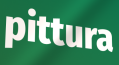
pittura